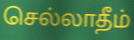
செல்லாதீம்